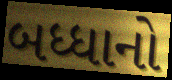
બધ્ધાનો